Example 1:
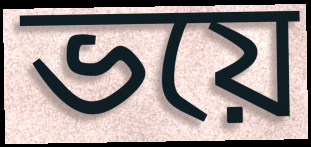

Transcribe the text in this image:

ভয়ে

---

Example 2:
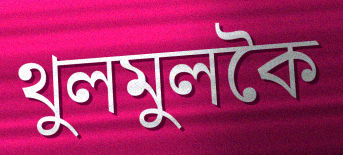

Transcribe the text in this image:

থুলমুলকৈ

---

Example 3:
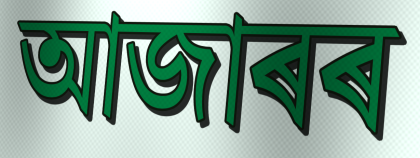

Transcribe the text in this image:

আজাৰৰ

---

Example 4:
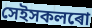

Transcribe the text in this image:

সেইসকলৰো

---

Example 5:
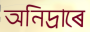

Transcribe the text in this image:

অনিদ্ৰাৰে